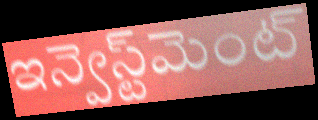
ఇన్వెస్ట్‌మెంట్